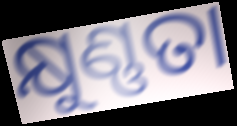
କ୍ଷୁଣ୍ଣତା